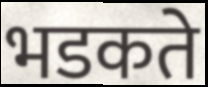
भडकते